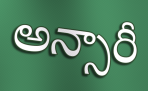
అన్సారీ